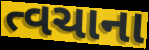
ત્વચાના